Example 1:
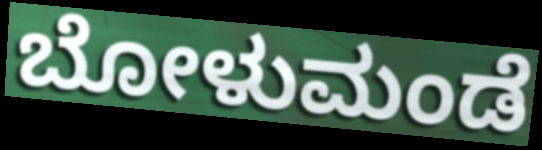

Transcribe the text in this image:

ಬೋಳುಮಂಡೆ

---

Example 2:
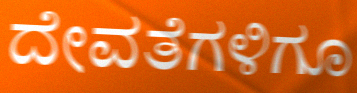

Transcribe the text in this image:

ದೇವತೆಗಳಿಗೂ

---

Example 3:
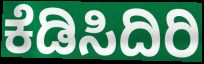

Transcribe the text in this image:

ಕೆಡಿಸಿದಿರಿ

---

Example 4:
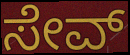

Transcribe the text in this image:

ಸೇವ್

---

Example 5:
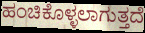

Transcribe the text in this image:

ಹಂಚಿಕೊಳ್ಳಲಾಗುತ್ತದೆ